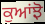
ਕੁਆਂਝੋ